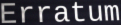
Erratum